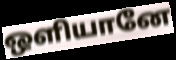
ஒளியானே